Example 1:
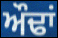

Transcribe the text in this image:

ਔਢਾਂ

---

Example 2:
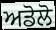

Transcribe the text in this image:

ਅਡੋਲੋ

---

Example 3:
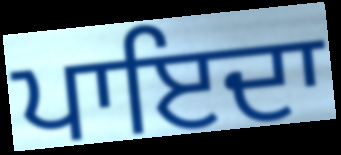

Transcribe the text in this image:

ਪਾਇਦਾ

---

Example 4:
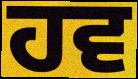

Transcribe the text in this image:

ਹਵ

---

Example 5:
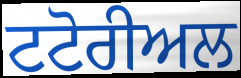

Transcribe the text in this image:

ਟਟੋਰੀਅਲ